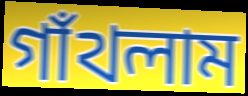
গাঁথলাম